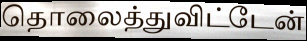
தொலைத்துவிட்டேன்